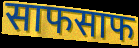
साफसाफ